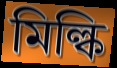
মিল্কি